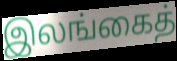
இலங்கைத்